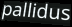
pallidus